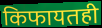
किफायतही